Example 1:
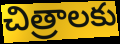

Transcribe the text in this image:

చిత్రాలకు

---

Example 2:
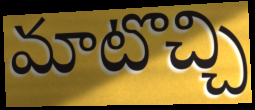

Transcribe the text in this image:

మాటొచ్చి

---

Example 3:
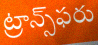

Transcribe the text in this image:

ట్రాన్స్‌ఫరు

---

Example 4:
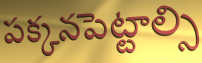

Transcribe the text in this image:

పక్కనపెట్టాల్సి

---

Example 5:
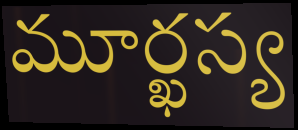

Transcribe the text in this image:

మూర్ఖస్య